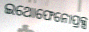
ଇଥୋଫେନୋପ୍ରକ୍ସ